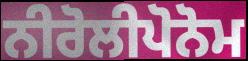
ਨੀਰੋਲੀਪੋਨੋਮ